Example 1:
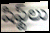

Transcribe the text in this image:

షిఫ్ట్‌లు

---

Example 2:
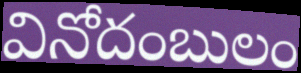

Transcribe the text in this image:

వినోదంబులం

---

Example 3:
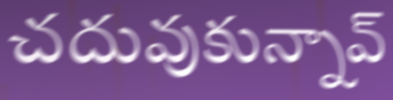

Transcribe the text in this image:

చదువుకున్నావ్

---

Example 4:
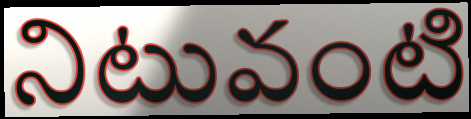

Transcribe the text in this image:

నిటువంటి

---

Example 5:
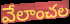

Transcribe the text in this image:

వేలాంచల